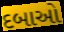
દબાઓ